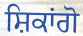
ਸ਼ਿਕਾਂਗੋ